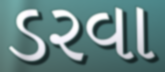
ડરવા